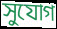
সুযোগ